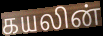
கயலின்